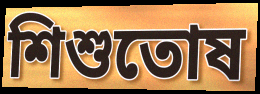
শিশুতোষ